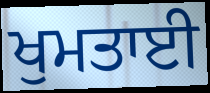
ਖੁਮਤਾਈ